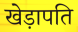
खेड़ापति